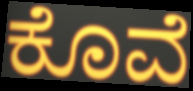
ಕೊವೆ